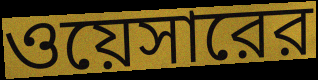
ওয়েসারের